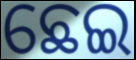
ଛେଇ